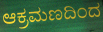
ಆಕ್ರಮಣದಿಂದ